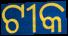
ଟୀକ